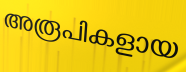
അരൂപികളായ